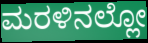
ಮರಳಿನಲ್ಲೋ